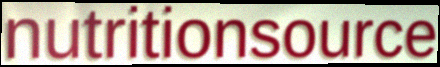
nutritionsource